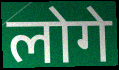
लोगे